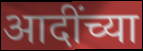
आदींच्या